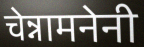
चेन्नामनेनी